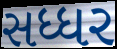
સધ્ધર